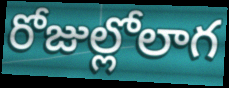
రోజుల్లోలాగ